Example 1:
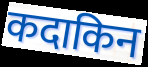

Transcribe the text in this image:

कदाकिन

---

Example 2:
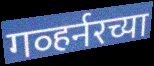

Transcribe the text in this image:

गव्हर्नरच्या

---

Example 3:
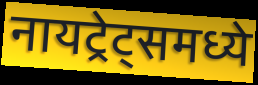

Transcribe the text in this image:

नायट्रेट्समध्ये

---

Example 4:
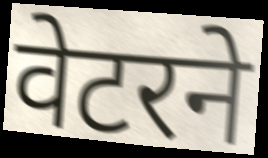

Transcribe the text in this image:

वेटरने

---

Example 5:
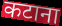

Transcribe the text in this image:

कटाना